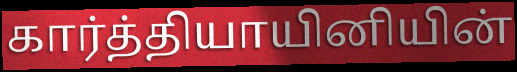
கார்த்தியாயினியின்